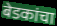
बेडकांचा